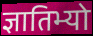
ज्ञातिभ्यो